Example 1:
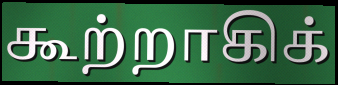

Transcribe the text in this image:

கூற்றாகிக்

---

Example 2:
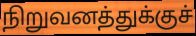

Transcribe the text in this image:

நிறுவனத்துக்குச்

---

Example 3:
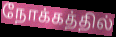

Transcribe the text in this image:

நோக்கத்தில்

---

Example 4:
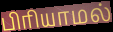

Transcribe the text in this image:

பிரியாமல்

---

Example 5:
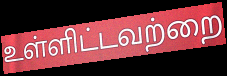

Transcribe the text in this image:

உள்ளிட்டவற்றை